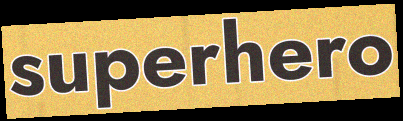
superhero